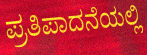
ಪ್ರತಿಪಾದನೆಯಲ್ಲಿ